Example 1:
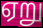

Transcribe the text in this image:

ஏறு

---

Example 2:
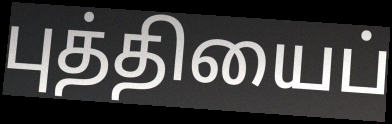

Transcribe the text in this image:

புத்தியைப்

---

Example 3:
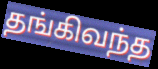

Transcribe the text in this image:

தங்கிவந்த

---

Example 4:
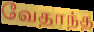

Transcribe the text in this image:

வேதாந்த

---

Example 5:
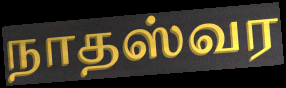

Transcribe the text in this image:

நாதஸ்வர